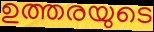
ഉത്തരയുടെ